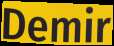
Demir